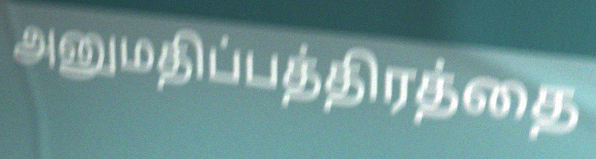
அனுமதிப்பத்திரத்தை